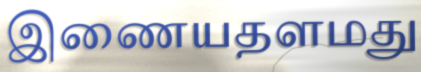
இணையதளமது